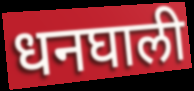
धनघाली